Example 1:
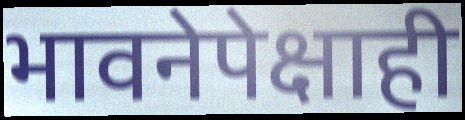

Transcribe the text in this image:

भावनेपेक्षाही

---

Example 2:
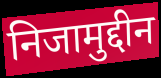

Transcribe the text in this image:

निजामुद्दीन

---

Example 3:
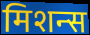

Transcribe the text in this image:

मिशन्स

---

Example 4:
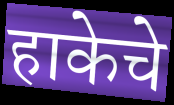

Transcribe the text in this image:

हाकेचे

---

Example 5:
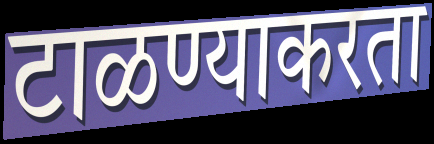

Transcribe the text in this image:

टाळण्याकरता